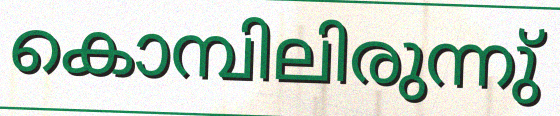
കൊമ്പിലിരുന്നു്